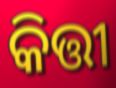
କିତ୍ତୀ